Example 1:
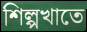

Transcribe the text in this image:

শিল্পখাতে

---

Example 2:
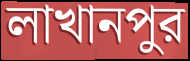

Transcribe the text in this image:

লাখানপুর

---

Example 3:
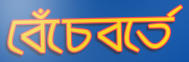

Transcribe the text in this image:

বেঁচেবর্তে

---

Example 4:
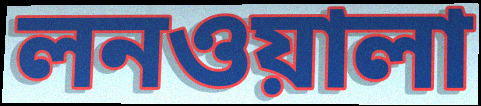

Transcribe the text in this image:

লনওয়ালা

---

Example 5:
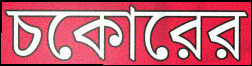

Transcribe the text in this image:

চকোরের